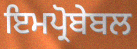
ਇਮਪ੍ਰੋਬੇਬਲ